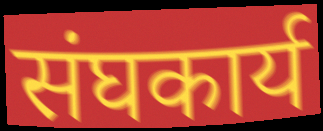
संघकार्य